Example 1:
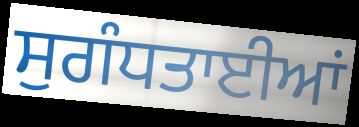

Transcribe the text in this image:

ਸੁਗੰਧਤਾਈਆਂ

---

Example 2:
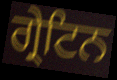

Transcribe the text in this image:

ਗ੍ਰੇਟਿਨ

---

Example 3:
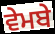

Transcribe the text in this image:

ਵੇਮਬੇ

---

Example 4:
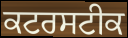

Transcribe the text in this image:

ਕਟਰਸਟੀਕ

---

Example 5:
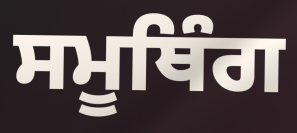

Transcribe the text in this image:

ਸਮੂਥਿੰਗ